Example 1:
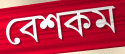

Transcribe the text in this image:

বেশকম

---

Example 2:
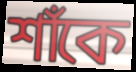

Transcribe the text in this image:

শাঁকে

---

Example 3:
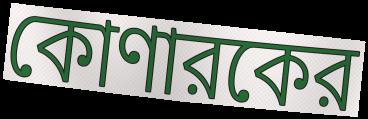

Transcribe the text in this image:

কোণারকের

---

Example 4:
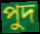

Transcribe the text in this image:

পুদ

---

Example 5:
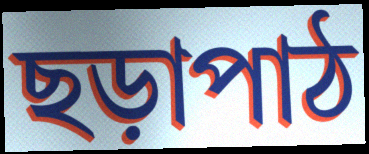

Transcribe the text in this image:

ছড়াপাঠ